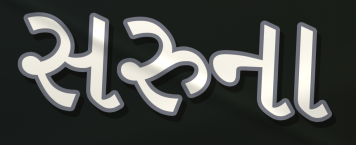
સરુના